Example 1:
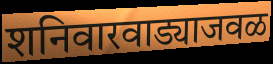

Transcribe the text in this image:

शनिवारवाड्याजवळ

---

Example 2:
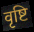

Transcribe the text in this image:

वृष्टि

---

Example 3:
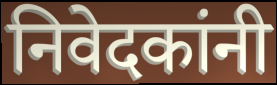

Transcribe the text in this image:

निवेदकांनी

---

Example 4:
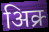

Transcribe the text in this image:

अिक्र्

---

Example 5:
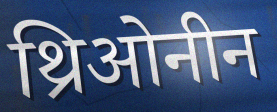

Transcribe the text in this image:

थ्रिओनीन